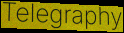
Telegraphy